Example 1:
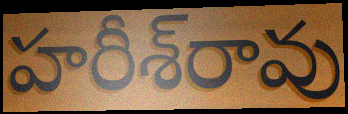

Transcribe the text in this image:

హరీశ్‌రావు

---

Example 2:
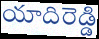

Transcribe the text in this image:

యాదిరెడ్డి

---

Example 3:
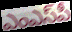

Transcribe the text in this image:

ఎంఎస్‌పీ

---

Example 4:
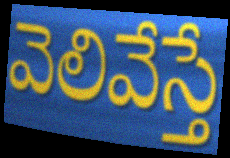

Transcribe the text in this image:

వెలివేస్తే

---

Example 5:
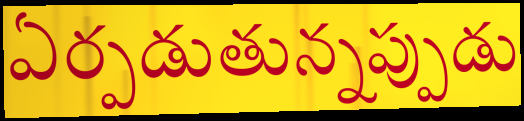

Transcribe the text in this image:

ఏర్పడుతున్నప్పుడు